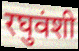
रघुवंशी